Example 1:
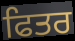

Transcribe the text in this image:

ਫਿਤਰ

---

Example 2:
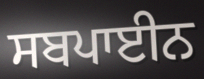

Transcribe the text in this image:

ਸਬਪਾਈਨ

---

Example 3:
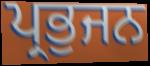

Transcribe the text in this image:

ਪ੍ਰਭੁਜਨ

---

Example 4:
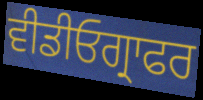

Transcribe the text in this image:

ਵੀਡੀਓਗ੍ਰਾਫਰ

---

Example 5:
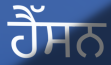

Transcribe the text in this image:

ਹੈੱਸਨ